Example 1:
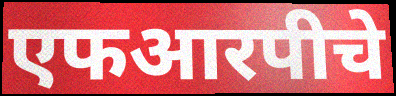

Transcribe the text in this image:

एफआरपीचे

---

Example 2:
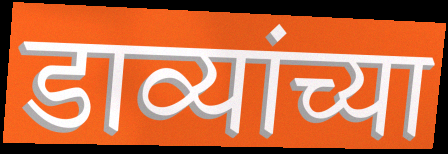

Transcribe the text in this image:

डाव्यांच्या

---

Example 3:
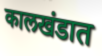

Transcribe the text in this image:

कालखंडात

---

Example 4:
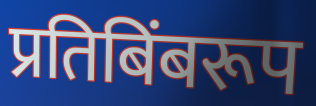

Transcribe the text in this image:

प्रतिबिंबरूप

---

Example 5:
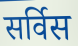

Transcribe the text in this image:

सर्विस